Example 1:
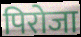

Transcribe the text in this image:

पिरोजा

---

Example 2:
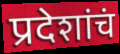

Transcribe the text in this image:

प्रदेशांचं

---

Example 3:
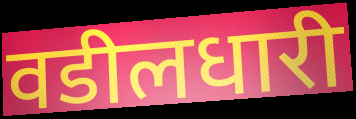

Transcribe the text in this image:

वडीलधारी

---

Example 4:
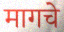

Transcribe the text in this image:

मागचे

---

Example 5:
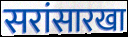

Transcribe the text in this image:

सरांसारखा